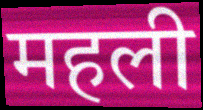
महली